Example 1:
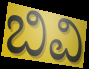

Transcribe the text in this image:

ಬಿವಿ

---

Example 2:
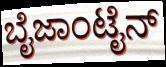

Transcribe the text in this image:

ಬೈಜಾಂಟೈನ್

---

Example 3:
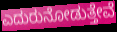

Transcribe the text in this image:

ಎದುರುನೋಡುತ್ತೇವೆ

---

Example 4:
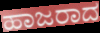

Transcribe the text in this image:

ಹಾಜರಾದ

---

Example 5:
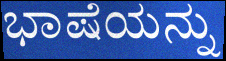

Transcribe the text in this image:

ಭಾಷೆಯನ್ನು